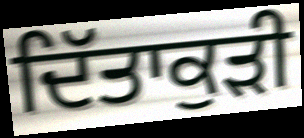
ਦਿੱਤਾਕੁੜੀ